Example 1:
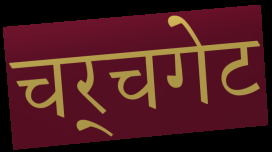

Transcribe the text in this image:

चर्चगेट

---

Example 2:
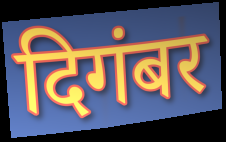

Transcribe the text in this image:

दिगंबर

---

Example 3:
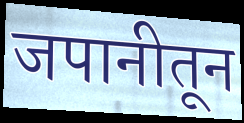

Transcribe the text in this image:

जपानीतून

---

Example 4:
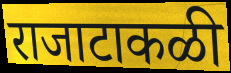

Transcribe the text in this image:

राजाटाकळी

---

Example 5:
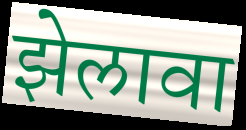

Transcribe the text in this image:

झेलावा